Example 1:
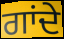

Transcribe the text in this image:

ਗਾਂਦੇ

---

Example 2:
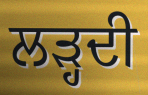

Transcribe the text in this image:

ਲੜ੍ਹਦੀ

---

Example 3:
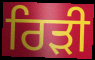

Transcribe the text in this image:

ਰਿੜੀ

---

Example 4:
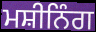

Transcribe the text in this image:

ਮਸ਼ੀਨਿੰਗ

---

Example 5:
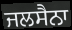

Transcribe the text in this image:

ਜਲਸੈਨਾ